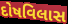
દોષવિલાસ